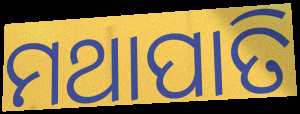
ମଥାପାତି